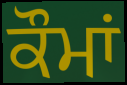
ਕੌਮਾਂ